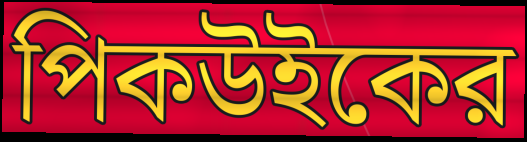
পিকউইকের